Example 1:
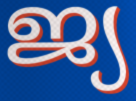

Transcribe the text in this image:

ജ്യ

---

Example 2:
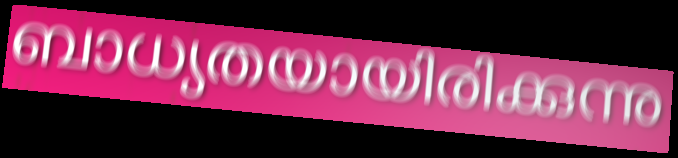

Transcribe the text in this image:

ബാധ്യതയായിരിക്കുന്നു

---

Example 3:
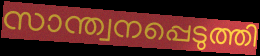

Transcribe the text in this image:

സാന്ത്വനപ്പെടുത്തി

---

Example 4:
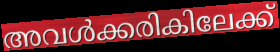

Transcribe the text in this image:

അവൾക്കരികിലേക്ക്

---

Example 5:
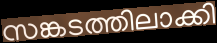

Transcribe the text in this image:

സങ്കടത്തിലാക്കി